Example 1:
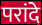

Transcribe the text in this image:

परांदे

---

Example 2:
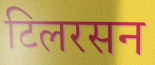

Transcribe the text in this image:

टिलरसन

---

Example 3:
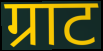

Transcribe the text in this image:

ग्राट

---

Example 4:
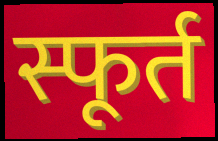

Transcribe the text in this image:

स्‍फूर्त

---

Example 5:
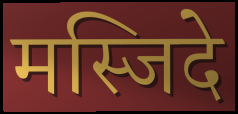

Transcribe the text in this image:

मस्जिदे